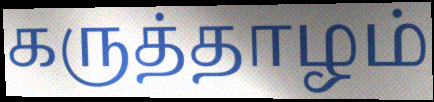
கருத்தாழம்